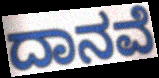
ದಾನವೆ